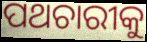
ପଥଚାରୀକୁ